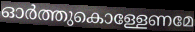
ഓർത്തുകൊള്ളേണമേ